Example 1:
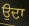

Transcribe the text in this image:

ਉਦਾ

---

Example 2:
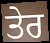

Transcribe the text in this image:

ਤੇਰ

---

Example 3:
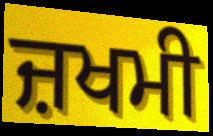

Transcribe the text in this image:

ਜ਼ਖਮੀ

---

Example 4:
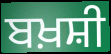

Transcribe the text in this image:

ਬਖ਼ਸ਼ੀ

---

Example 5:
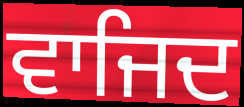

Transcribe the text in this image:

ਵਾਜਿਦ